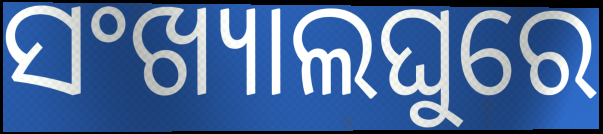
ସଂଖ୍ୟାଲଘୁରେ